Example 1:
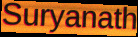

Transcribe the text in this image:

Suryanath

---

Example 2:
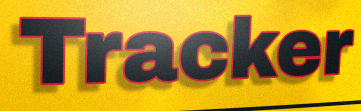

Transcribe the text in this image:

Tracker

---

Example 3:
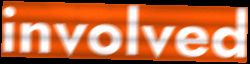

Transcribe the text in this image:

involved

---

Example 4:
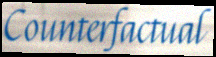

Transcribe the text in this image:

Counterfactual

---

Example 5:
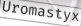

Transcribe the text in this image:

Uromastyx